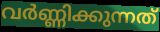
വർണ്ണിക്കുന്നത്